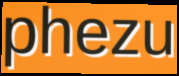
phezu